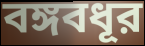
বঙ্গবধূর